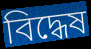
বিদ্ধেষ